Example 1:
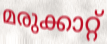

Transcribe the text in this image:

മരുക്കാറ്റ്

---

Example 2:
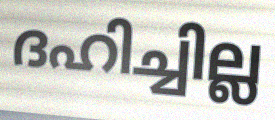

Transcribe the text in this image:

ദഹിച്ചില്ല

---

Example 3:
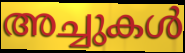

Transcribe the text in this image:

അച്ചുകൾ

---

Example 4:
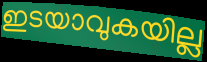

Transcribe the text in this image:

ഇടയാവുകയില്ല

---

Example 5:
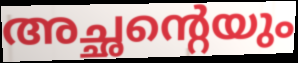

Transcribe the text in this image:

അച്ഛന്റെയും